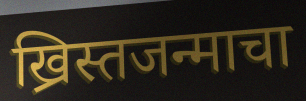
ख्रिस्तजन्माचा